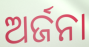
ଅର୍ଜନା